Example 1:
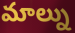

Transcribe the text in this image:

మాల్ను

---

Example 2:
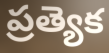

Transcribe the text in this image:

ప్రత్యెక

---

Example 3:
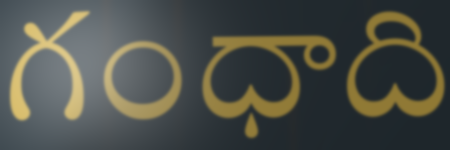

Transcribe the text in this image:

గంధాది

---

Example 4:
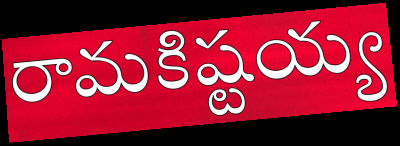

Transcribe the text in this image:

రామకిష్టయ్య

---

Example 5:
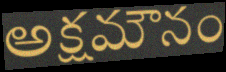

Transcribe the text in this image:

అక్షమౌనం